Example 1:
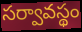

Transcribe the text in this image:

సర్వావస్థం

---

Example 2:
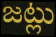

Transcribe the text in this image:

జట్లు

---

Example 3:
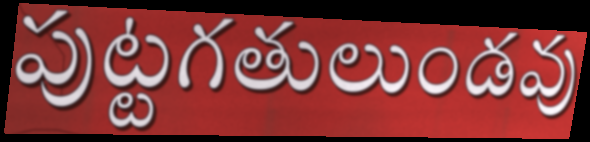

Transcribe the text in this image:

పుట్టగతులుండవు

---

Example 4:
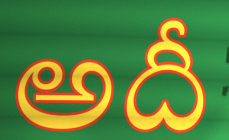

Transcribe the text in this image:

అదీ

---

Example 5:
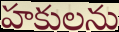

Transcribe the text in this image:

హకులను